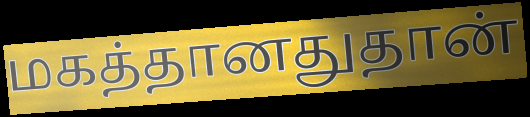
மகத்தானதுதான்